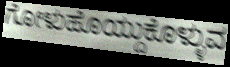
ಗೋಳುಹೊಯ್ದುಕೊಳ್ಳುವ